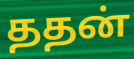
ததன்